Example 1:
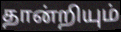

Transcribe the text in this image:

தான்றியும்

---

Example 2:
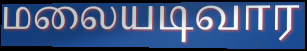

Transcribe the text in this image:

மலையடிவார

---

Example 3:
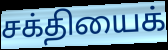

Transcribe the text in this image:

சக்தியைக்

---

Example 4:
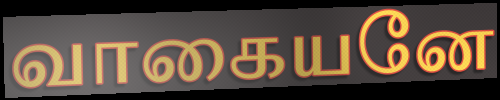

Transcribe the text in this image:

வாகையனே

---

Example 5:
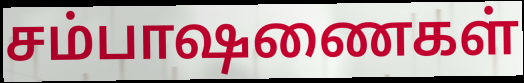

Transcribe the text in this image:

சம்பாஷணைகள்